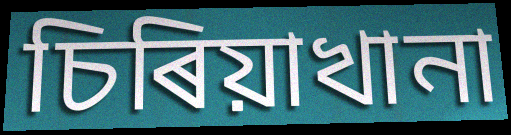
চিৰিয়াখানা